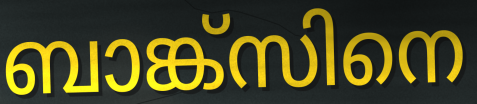
ബാങ്ക്സിനെ